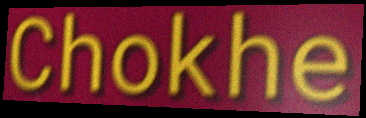
Chokhe